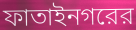
ফাতাইনগরের